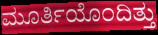
ಮೂರ್ತಿಯೊಂದಿತ್ತು